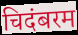
चिदंबरम